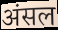
अंसल